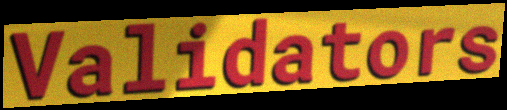
Validators